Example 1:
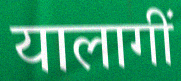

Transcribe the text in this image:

यालागीं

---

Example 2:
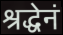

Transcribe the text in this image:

श्रद्धेनं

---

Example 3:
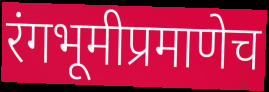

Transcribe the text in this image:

रंगभूमीप्रमाणेच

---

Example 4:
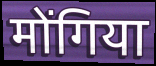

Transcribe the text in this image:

मोंगिया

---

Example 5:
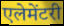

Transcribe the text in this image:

एलेमेंटरी